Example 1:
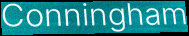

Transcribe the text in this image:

Conningham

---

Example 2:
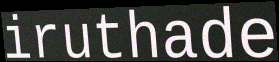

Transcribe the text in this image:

iruthade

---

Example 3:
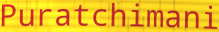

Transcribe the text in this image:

Puratchimani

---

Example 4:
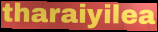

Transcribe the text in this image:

tharaiyilea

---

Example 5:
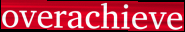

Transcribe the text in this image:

overachieve